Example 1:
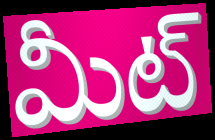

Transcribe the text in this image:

మీట్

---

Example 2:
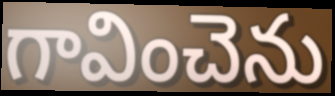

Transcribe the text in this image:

గావించెను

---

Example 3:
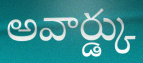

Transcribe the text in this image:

అవార్డ్కు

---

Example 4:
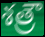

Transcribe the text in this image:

శత్రౌ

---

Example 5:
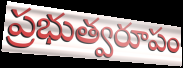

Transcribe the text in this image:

ప్రభుత్వరూపం